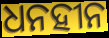
ଧନହୀନ